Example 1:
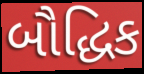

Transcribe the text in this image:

બૌદ્ધિક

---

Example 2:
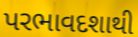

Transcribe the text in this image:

પરભાવદશાથી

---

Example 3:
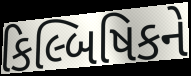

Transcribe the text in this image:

કિલ્બિષિકને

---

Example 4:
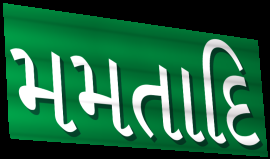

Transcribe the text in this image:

મમતાદિ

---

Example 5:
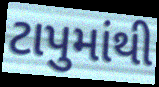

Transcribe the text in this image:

ટાપુમાંથી